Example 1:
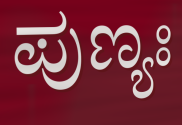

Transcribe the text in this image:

ಪುಣ್ಯಃ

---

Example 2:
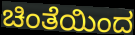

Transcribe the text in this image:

ಚಿಂತೆಯಿಂದ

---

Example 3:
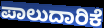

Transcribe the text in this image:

ಪಾಲುದಾರಿಕೆ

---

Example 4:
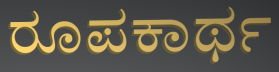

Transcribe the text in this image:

ರೂಪಕಾರ್ಥ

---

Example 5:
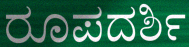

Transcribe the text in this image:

ರೂಪದರ್ಶಿ